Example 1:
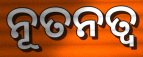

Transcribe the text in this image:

ନୂତନତ୍ୱ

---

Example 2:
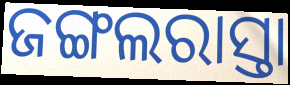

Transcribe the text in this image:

ଜଙ୍ଗଲରାସ୍ତା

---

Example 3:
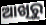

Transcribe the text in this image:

ଆଖିରୁ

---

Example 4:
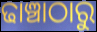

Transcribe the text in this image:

ଢାଞ୍ଚାଠାରୁ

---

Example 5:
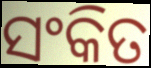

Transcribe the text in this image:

ସଂକିତ